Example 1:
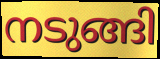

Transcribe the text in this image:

നടുങ്ങി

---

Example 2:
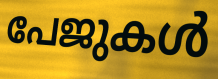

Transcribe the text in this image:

പേജുകൾ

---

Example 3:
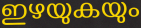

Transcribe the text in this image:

ഇഴയുകയും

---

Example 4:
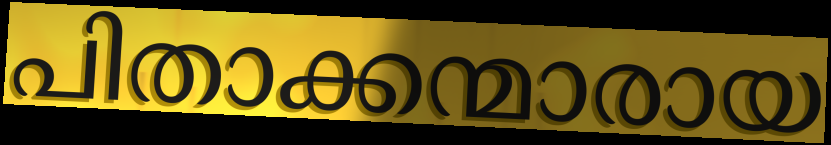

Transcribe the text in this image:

പിതാക്കന്മാരായ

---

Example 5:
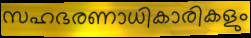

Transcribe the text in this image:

സഹഭരണാധികാരികളും